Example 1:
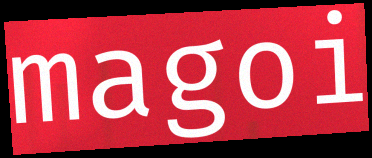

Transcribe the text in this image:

magoi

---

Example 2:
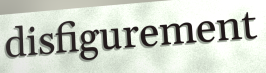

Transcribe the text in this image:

disfigurement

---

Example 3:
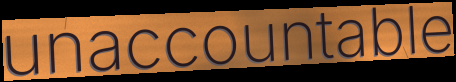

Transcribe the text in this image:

unaccountable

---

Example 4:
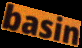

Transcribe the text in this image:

basin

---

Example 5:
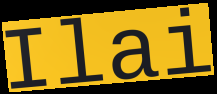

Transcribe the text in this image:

Ilai